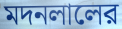
মদনলালের